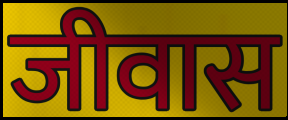
जीवास